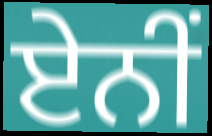
ਏਨੀਂ